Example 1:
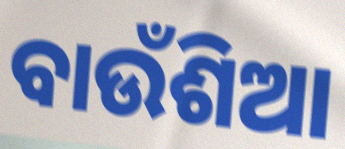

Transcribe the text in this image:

ବାଉଁଶିଆ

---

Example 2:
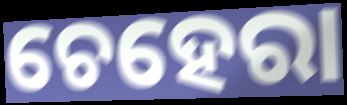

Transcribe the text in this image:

ଚେହେରା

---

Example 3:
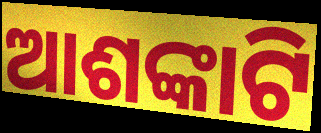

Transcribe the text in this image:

ଆଶଙ୍କାଟି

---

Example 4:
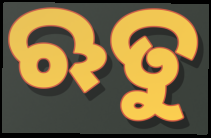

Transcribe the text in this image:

ଋତୁ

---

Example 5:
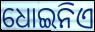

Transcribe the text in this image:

ଧୋଇନିଏ